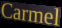
Carmel